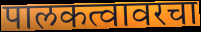
पालकत्वावरचा